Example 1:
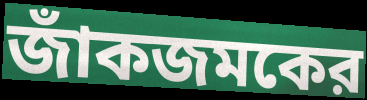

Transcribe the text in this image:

জাঁকজমকের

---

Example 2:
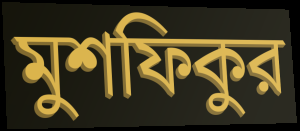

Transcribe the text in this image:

মুশফিকুর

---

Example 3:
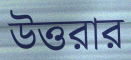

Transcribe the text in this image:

উত্তরার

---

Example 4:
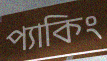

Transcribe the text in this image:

প্যাকিং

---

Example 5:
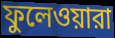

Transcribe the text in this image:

ফুলেওয়ারা